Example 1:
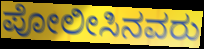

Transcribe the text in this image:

ಪೋಲೀಸಿನವರು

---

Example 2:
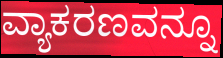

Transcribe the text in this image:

ವ್ಯಾಕರಣವನ್ನೂ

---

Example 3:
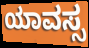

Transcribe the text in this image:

ಯಾವಸ್ಸ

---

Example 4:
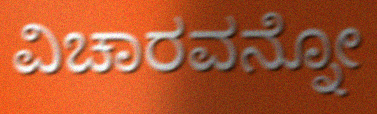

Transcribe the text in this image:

ವಿಚಾರವನ್ನೋ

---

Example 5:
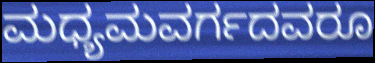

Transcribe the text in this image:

ಮಧ್ಯಮವರ್ಗದವರೂ